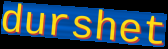
durshet